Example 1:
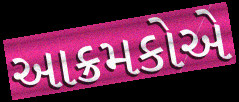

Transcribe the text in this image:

આક્રમકોએ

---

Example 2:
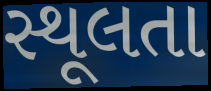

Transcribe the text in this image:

સ્થૂલતા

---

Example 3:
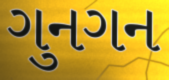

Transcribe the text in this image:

ગુનગન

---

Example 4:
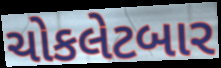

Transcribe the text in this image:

ચોકલેટબાર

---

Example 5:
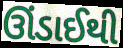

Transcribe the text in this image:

ઊંડાઈથી